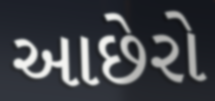
આછેરો